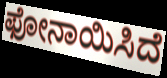
ಫೋನಾಯಿಸಿದೆ